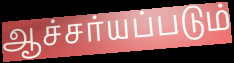
ஆச்சர்யப்படும்